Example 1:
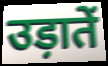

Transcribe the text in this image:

उड़ातें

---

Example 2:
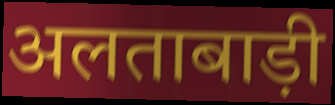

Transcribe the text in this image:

अलताबाड़ी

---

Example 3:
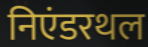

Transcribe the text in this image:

निएंडरथल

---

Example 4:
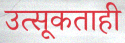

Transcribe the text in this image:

उत्सूकताही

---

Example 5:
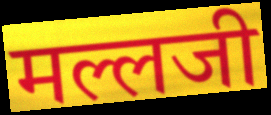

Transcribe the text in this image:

मल्लजी